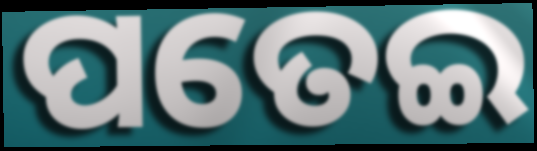
ପତେଇ